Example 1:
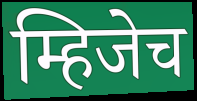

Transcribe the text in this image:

म्हिजेच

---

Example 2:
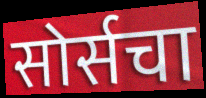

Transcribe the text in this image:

सोर्सचा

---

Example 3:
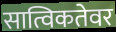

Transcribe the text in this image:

सात्विकतेवर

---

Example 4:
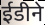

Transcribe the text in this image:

ईडीने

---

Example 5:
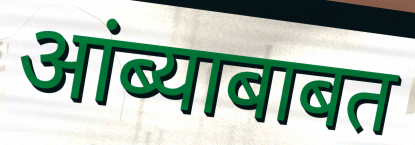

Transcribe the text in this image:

आंब्याबाबत